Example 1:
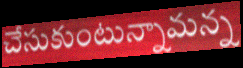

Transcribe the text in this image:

చేసుకుంటున్నామన్న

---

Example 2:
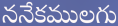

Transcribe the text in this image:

ననేకములగు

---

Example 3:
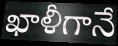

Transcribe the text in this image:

ఖాళీగానే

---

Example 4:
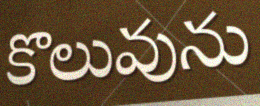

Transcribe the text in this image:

కొలువును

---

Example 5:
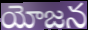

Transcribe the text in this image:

యోజన